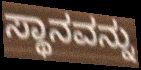
ಸ್ಥಾನವನ್ನು